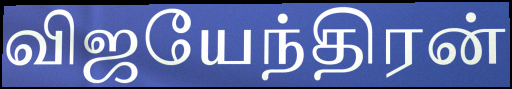
விஜயேந்திரன்